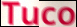
Tuco